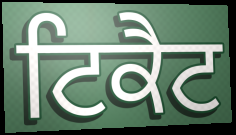
ਟਿਕੈਟ